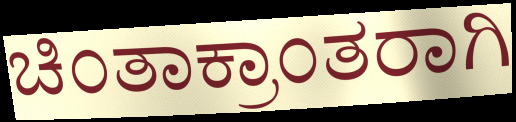
ಚಿಂತಾಕ್ರಾಂತರಾಗಿ